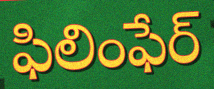
ఫిలింఫేర్